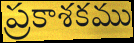
ప్రకాశకము